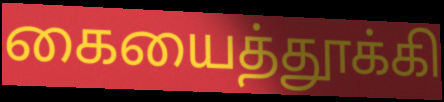
கையைத்தூக்கி